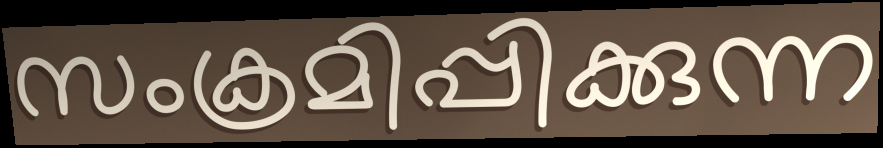
സംക്രമിപ്പിക്കുന്ന